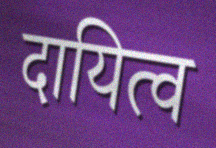
दायित्व